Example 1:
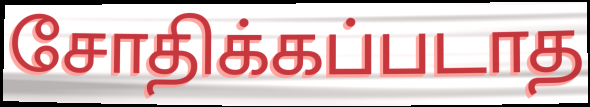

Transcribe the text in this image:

சோதிக்கப்படாத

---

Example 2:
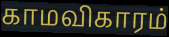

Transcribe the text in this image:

காமவிகாரம்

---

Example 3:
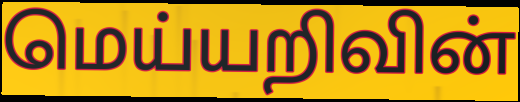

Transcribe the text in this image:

மெய்யறிவின்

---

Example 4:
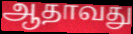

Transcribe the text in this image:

ஆதாவது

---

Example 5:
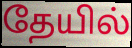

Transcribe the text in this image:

தேயில்